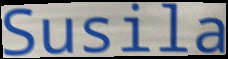
Susila